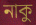
নাকু